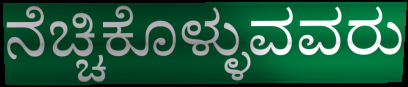
ನೆಚ್ಚಿಕೊಳ್ಳುವವರು